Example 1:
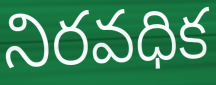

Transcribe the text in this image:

నిరవధిక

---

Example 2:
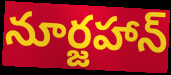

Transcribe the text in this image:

నూర్జహాన్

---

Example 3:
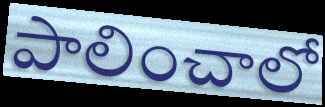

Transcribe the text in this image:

పాలించాలో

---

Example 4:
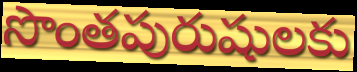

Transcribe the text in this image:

సొంతపురుషులకు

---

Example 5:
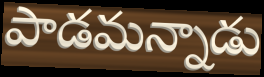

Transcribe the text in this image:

పాడమన్నాడు